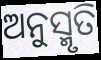
ଅନୁସ୍ମୃତି